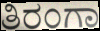
ತಿರಂಗಾ